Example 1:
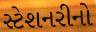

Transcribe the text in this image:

સ્ટેશનરીનો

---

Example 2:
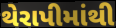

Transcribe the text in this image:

થેરાપીમાંથી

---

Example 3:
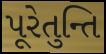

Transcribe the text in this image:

પૂરેતુન્તિ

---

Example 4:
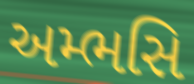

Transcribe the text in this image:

અમ્ભસિ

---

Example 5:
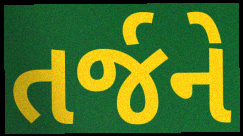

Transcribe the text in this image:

તર્જને